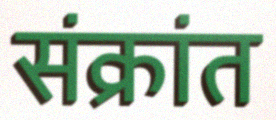
संक्रांत